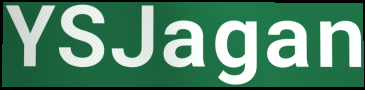
YSJagan